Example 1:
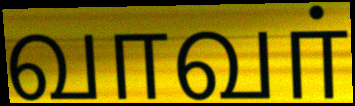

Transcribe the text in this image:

வாவர்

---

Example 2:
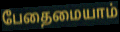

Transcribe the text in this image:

பேதைமையாம்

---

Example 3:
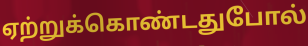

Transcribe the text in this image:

ஏற்றுக்கொண்டதுபோல்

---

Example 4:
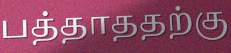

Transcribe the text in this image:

பத்தாததற்கு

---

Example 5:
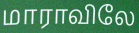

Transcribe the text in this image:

மாராவிலே